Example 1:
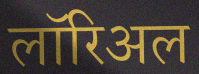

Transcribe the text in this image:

लॉरिअल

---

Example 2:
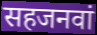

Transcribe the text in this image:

सहजनवां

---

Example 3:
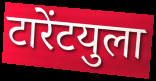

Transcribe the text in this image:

टारेंटयुला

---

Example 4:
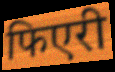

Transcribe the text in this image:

फिएरी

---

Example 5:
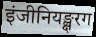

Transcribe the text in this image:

इंजीनियङ्क्षरग